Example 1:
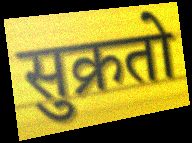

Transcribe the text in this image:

सुक्रतो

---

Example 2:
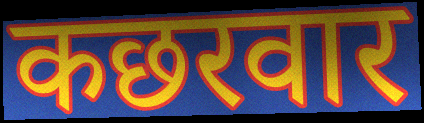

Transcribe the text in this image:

कछरवार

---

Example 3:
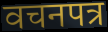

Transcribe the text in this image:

वचनपत्र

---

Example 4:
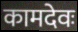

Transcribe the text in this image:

कामदेवः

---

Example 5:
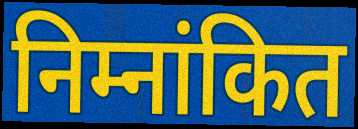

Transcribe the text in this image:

निम्नांकित